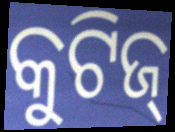
କୁଟିଜ୍